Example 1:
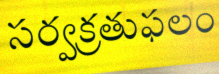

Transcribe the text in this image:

సర్వక్రతుఫలం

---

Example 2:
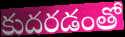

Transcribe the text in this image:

కుదరడంతో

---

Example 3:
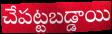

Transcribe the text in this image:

చేపట్టబడ్డాయి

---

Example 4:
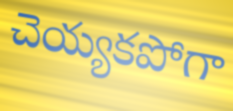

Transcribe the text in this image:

చెయ్యకపోగా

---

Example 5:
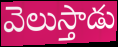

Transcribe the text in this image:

వెలుస్తాడు